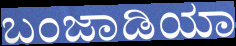
ಬಂಜಾಡಿಯಾ